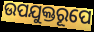
ଉପଯୁକ୍ତରୂପେ